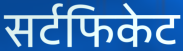
सर्टफिकेट